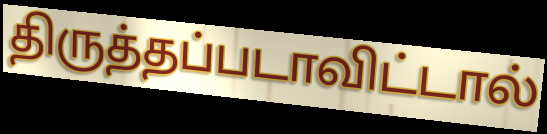
திருத்தப்படாவிட்டால்